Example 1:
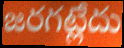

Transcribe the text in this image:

జరగట్లేదు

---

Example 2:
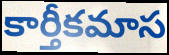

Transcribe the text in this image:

కార్తీకమాస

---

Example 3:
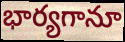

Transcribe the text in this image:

భార్యగానూ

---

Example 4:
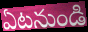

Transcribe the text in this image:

ఏటనుండి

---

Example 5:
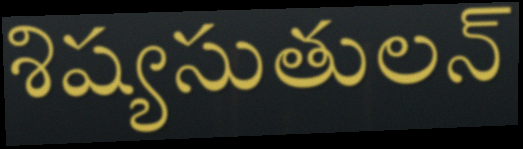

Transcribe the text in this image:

శిష్యసుతులన్